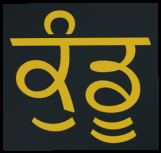
ਕੁੰਡੂ